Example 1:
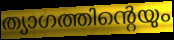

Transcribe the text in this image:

ത്യാഗത്തിന്റെയും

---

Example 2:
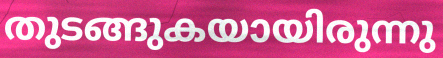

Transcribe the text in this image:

തുടങ്ങുകയായിരുന്നു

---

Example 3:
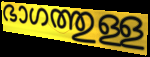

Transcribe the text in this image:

ഭാഗത്തുള്ള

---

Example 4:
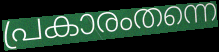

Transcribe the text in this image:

പ്രകാരംതന്നെ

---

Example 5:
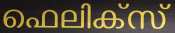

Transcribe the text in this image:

ഫെലിക്‌സ്